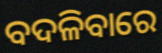
ବଦଳିବାରେ